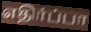
எதிர்ப்பா